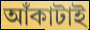
আঁকাটাই